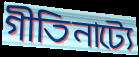
গীতিনাট্যে